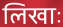
लिखाः